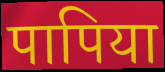
पापिया